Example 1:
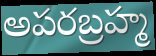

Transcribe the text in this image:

అపరబ్రహ్మ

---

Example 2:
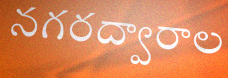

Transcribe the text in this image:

నగరద్వారాల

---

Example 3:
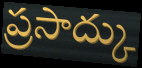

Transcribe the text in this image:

ప్రసాద్కు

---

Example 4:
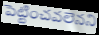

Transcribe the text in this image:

పెట్టించవలెనని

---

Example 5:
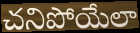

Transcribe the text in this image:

చనిపోయేలా